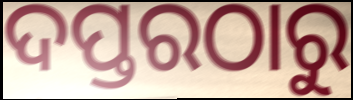
ଦପ୍ତରଠାରୁ